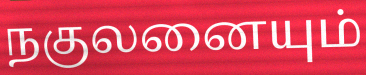
நகுலனையும்